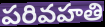
పరివహతి